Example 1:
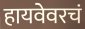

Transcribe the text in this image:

हायवेवरचं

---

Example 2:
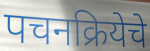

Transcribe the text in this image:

पचनक्रियेचे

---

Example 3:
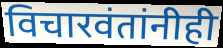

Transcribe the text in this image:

विचारवंतांनीही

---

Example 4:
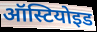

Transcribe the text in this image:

ऑस्टियोइड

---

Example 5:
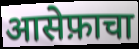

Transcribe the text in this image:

आसेफ़ाचा